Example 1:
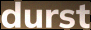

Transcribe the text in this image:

durst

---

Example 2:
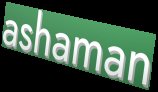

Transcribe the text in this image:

ashaman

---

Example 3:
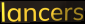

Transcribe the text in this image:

lancers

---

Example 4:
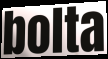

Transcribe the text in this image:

bolta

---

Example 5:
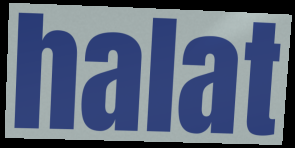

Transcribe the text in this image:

halat